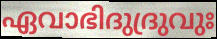
ഏവാഭിദുദ്രുവുഃ